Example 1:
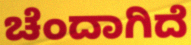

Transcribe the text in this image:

ಚೆಂದಾಗಿದೆ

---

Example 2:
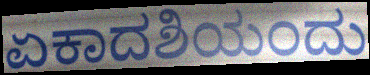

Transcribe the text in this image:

ಏಕಾದಶಿಯಂದು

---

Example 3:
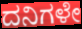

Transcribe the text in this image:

ದನಿಗಳೇ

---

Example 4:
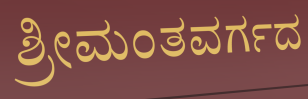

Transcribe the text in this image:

ಶ್ರೀಮಂತವರ್ಗದ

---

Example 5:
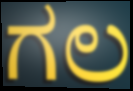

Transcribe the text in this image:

ಗಲ